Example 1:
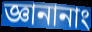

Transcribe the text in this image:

জ্ঞানানাং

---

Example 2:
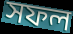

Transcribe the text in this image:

সফল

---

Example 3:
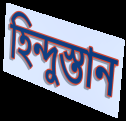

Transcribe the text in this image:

হিন্দুস্তান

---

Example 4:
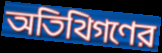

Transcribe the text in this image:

অতিথিগণের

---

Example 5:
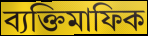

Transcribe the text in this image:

ব্যক্তিমাফিক